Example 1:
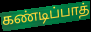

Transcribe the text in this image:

கண்டிப்பாத்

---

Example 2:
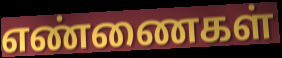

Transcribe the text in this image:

எண்ணைகள்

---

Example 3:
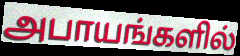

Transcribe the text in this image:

அபாயங்களில்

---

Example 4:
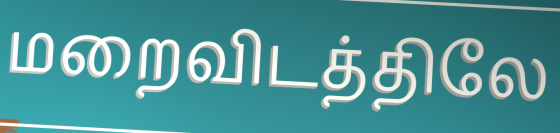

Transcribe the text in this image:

மறைவிடத்திலே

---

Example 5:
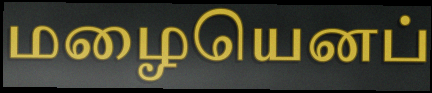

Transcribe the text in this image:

மழையெனப்